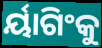
ର୍ୟାଗିଂକୁ